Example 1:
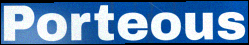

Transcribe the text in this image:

Porteous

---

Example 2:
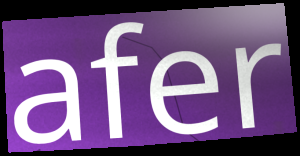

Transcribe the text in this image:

afer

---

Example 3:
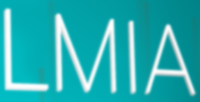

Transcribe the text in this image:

LMIA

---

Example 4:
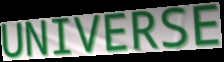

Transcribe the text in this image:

UNIVERSE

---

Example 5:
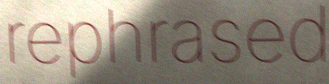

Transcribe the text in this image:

rephrased